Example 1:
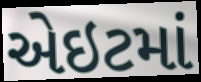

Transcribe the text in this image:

એઇટમાં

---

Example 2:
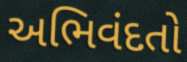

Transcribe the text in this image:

અભિવંદતો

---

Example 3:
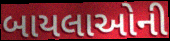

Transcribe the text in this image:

બાયલાઓની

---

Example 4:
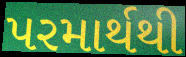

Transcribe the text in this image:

પરમાર્થથી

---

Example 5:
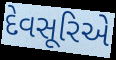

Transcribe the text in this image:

દેવસૂરિએ